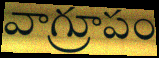
వాగ్రూపం